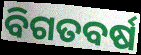
ବିଗତବର୍ଷ